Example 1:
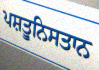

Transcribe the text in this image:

ਪਸ਼ਤੂਨਿਸਤਾਨ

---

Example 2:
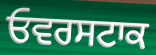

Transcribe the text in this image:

ਓਵਰਸਟਾਕ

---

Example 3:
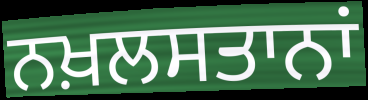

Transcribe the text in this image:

ਨਖ਼ਲਸਤਾਨਾਂ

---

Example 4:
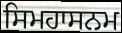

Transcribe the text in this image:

ਸਿਮਹਾਸਨਮ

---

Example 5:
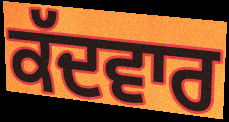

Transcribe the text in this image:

ਕੱਦਵਾਰ